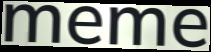
meme